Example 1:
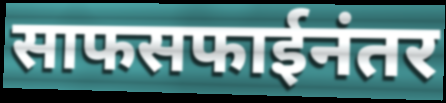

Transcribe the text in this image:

साफसफाईनंतर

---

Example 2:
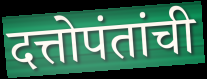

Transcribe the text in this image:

दत्तोपंतांची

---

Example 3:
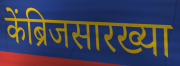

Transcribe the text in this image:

केंब्रिजसारख्या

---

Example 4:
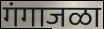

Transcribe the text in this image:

गंगाजळा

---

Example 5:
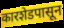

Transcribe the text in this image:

कारशेडपासून